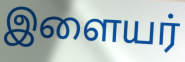
இளையர்